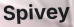
Spivey